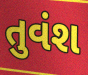
તુવંશ